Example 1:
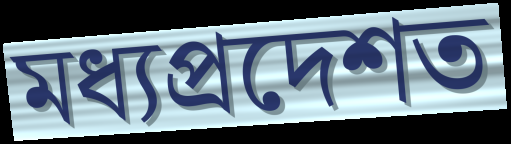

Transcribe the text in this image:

মধ্যপ্ৰদেশত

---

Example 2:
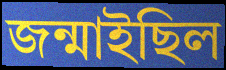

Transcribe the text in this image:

জন্মাইছিল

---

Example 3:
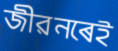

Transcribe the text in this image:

জীৱনৰেই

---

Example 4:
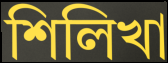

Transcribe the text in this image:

শিলিখা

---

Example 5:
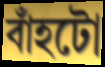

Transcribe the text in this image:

বাঁহটো